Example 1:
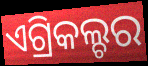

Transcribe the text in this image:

ଏଗ୍ରିକଲ୍ଚର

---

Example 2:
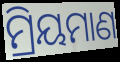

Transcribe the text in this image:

ମ୍ରିୟମାଣ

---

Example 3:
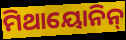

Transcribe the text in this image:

ମିଥାୟୋନିନ୍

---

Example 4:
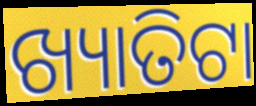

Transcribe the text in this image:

ଖ୍ୟାତିଟା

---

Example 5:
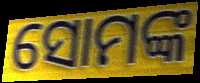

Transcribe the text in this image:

ସୋମଙ୍କ